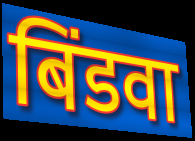
बिंडवा